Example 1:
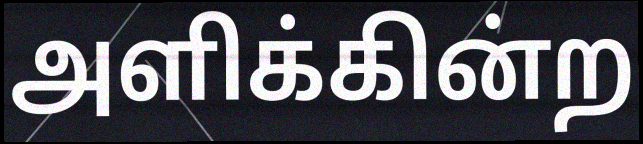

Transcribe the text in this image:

அளிக்கின்ற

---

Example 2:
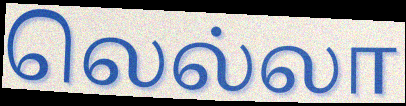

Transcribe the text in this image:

லெல்லா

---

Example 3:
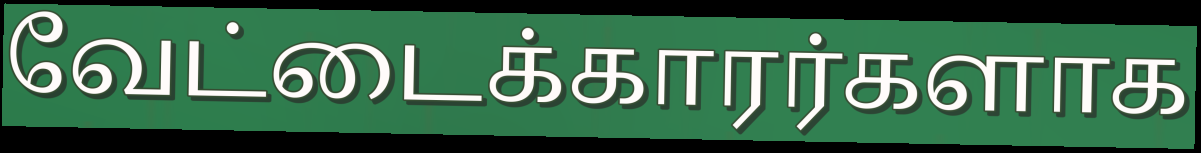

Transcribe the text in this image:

வேட்டைக்காரர்களாக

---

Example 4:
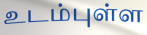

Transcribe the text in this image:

உடம்புள்ள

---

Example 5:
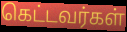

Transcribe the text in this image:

கெட்டவர்கள்